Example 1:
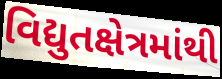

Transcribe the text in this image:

વિદ્યુતક્ષેત્રમાંથી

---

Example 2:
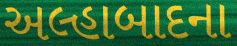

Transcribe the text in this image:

અલ્હાબાદના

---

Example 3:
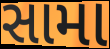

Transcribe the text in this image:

સામા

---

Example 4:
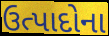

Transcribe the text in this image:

ઉત્પાદોના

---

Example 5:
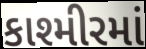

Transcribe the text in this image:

કાશ્મીરમાં